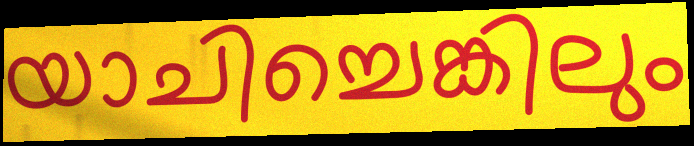
യാചിച്ചെങ്കിലും